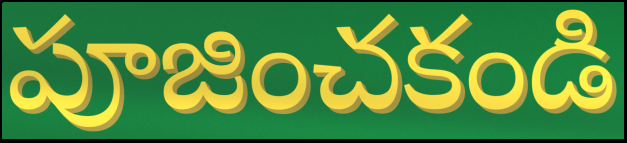
పూజించకండి